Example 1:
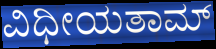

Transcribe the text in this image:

ವಿಧೀಯತಾಮ್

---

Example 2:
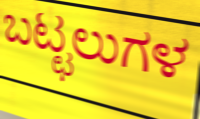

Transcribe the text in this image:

ಬಟ್ಟಲುಗಳ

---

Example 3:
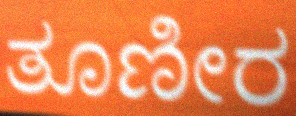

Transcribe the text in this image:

ತೂಣೀರ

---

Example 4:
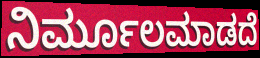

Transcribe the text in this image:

ನಿರ್ಮೂಲಮಾಡದೆ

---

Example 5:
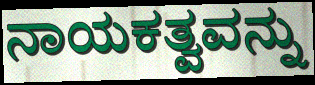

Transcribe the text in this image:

ನಾಯಕತ್ವವನ್ನು